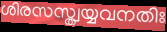
ശിരസസ്ത്വയ്യവനതിഃ